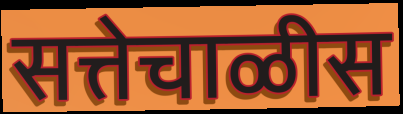
सत्तेचाळीस